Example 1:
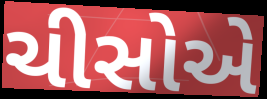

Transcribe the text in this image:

ચીસોએ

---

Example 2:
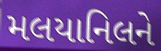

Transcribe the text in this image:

મલયાનિલને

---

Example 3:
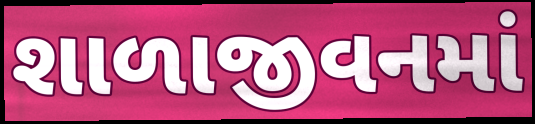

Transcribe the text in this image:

શાળાજીવનમાં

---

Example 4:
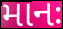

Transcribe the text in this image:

માનઃ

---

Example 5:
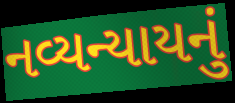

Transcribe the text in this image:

નવ્યન્યાયનું